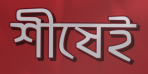
শীষেই